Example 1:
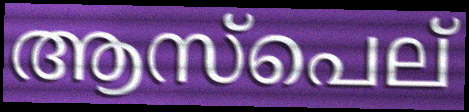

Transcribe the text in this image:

ആസ്പെല്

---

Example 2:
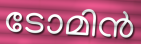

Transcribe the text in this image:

ടോമിൻ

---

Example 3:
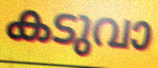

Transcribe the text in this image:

കടുവാ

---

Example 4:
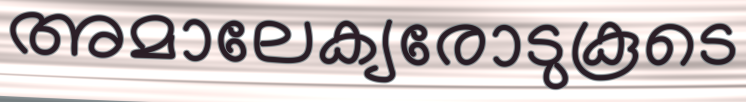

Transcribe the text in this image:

അമാലേക്യരോടുകൂടെ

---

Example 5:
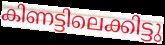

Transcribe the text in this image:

കിണട്ടിലെക്കിട്ടു